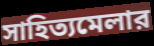
সাহিত্যমেলার